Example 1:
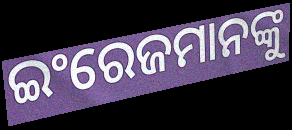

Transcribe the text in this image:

ଇଂରେଜମାନଙ୍କୁ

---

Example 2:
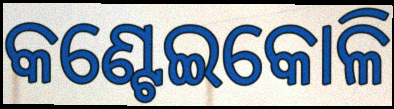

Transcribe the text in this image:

କଣ୍ଟେଇକୋଳି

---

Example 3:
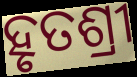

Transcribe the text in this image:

ହୃତଶ୍ରୀ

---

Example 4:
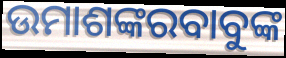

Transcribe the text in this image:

ଉମାଶଙ୍କରବାବୁଙ୍କ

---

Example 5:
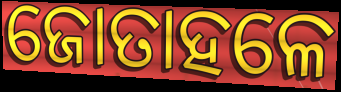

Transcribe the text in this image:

ଜୋତାହଳେ